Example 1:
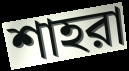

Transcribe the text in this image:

শাহরা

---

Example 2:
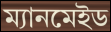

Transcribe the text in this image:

ম্যানমেইড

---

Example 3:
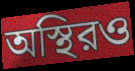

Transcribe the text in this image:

অস্থিরও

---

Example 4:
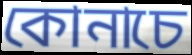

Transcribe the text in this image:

কোনাচে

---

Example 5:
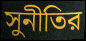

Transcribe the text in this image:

সুনীতির